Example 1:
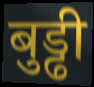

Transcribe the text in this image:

बुड्ढी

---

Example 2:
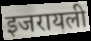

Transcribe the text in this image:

इजरायली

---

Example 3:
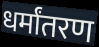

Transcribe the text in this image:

धर्मांतरण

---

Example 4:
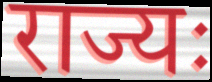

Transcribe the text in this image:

राज्यः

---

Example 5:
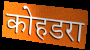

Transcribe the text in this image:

कोहडरा